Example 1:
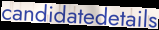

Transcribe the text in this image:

candidatedetails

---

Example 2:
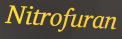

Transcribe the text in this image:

Nitrofuran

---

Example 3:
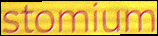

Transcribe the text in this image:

stomium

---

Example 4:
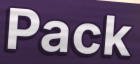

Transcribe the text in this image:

Pack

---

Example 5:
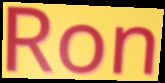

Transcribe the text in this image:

Ron